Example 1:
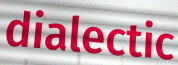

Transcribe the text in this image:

dialectic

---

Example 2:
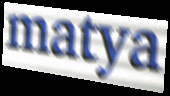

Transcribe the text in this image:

matya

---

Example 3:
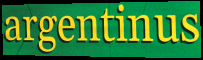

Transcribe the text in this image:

argentinus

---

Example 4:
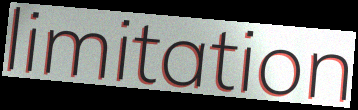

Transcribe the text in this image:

limitation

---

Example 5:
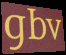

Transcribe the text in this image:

gbv